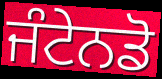
ਜੰਟੇਨਡੋ